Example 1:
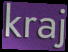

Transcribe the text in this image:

kraj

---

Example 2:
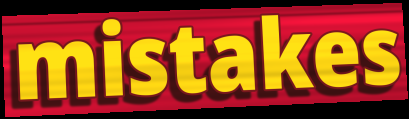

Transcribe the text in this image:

mistakes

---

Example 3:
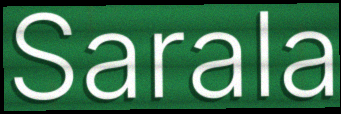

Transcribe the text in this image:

Sarala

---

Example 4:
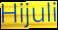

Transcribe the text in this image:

Hijuli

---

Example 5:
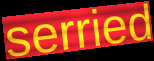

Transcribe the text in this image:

serried